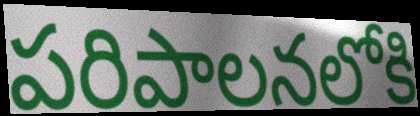
పరిపాలనలోకి